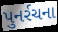
પુનર્રચના